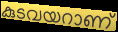
കുടവയറാണ്